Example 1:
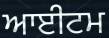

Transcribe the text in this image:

ਆਈਟਮ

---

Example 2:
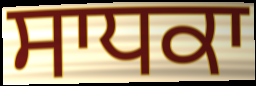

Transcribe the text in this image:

ਸਾਧਕਾ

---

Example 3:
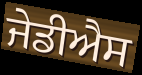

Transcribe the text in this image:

ਜੇਡੀਐਸ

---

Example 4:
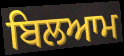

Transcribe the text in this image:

ਬਿਲਆਮ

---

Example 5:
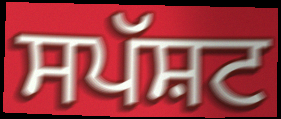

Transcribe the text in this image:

ਸਪੱਸ਼ਟ